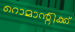
റൊമാന്റിക്ക്